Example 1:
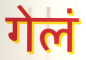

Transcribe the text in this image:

गेलं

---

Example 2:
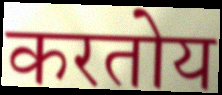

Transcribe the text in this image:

करतोय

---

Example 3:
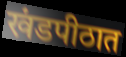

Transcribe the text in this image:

खंडपीठात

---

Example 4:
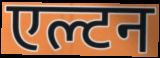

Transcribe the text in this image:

एल्टन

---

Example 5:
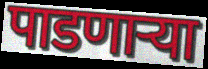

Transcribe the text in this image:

पाडणाऱ्या